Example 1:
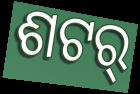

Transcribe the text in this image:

ଶଟର୍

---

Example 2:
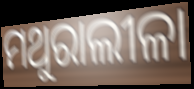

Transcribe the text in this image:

ମଥୁରାଲୀଳା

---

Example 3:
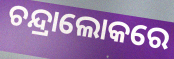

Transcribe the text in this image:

ଚନ୍ଦ୍ରାଲୋକରେ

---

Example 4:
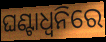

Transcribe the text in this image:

ଘଣ୍ଟାଧ୍ୱନିରେ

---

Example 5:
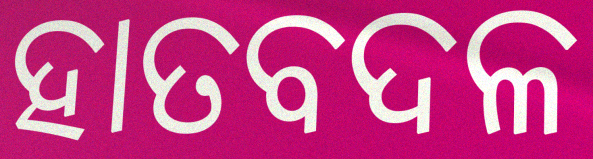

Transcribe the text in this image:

ହାତବଦଳ